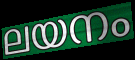
ലയനം